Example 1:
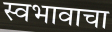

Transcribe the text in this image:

स्वभावाचा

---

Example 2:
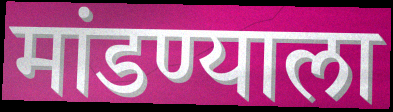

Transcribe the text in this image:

मांडण्याला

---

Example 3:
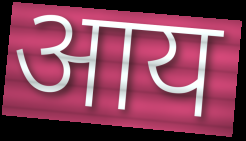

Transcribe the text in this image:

आय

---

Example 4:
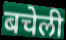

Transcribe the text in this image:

बचेली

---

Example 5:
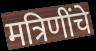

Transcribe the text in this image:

मत्रिणींचे